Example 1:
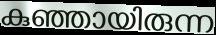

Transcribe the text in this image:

കുഞ്ഞായിരുന്ന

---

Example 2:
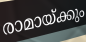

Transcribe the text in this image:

രാമായ്ക്കും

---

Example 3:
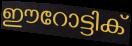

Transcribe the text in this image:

ഈറോട്ടിക്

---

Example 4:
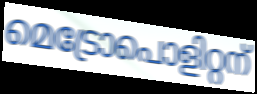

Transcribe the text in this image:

മെട്രോപൊളിറ്റന്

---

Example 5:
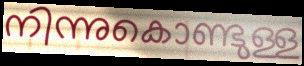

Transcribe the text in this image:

നിന്നുകൊണ്ടുള്ള